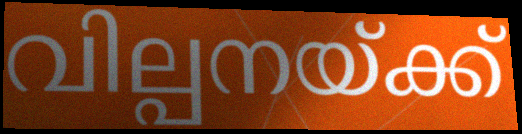
വില്പനയ്ക്ക്